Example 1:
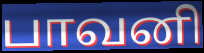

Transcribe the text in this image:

பாவனி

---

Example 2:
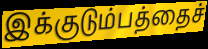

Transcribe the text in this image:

இக்குடும்பத்தைச்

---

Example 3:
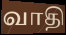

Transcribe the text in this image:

வாதி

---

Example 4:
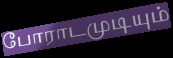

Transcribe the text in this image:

போராடமுடியும்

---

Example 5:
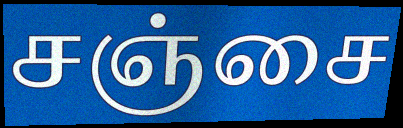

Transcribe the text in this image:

சஞ்சை